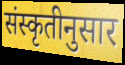
संस्कृतीनुसार